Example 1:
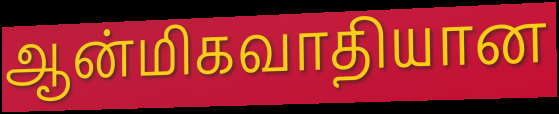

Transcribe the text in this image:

ஆன்மிகவாதியான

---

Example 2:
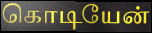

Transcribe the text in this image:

கொடியேன்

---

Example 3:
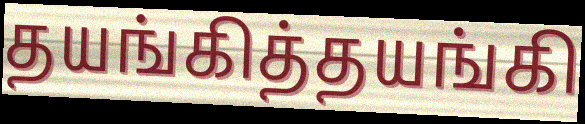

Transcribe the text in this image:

தயங்கித்தயங்கி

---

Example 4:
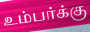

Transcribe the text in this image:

உம்பர்க்கு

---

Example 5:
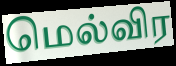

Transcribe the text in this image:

மெல்விர